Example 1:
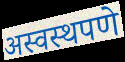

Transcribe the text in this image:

अस्वस्थपणे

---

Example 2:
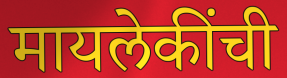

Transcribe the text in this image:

मायलेकींची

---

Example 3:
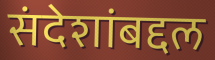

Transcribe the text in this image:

संदेशांबद्दल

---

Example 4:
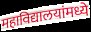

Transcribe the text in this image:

महाविद्यालयांमध्ये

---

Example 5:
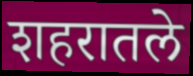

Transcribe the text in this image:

शहरातले